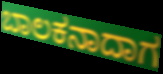
ಬಾಲಕನಾದಾಗ